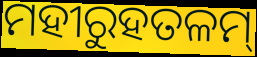
ମହୀରୁହତଳମ୍